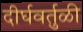
दीर्घवर्तुळी